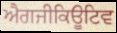
ਐਗਜੀਕਿਊਟਿਵ